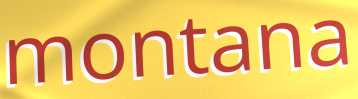
montana